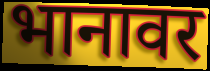
भानावर